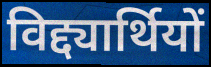
विद्द्यार्थियों